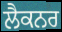
ਲੈਕਨਰ